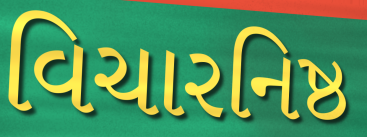
વિચારનિષ્ઠ